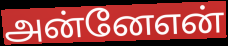
அன்னேஎன்